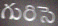
గురిసె